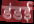
डंडई